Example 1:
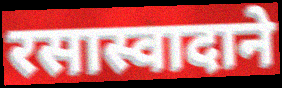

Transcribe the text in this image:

रसास्वादाने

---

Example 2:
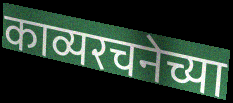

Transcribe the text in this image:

काव्यरचनेच्या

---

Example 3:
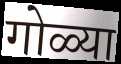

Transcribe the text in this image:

गोळ्या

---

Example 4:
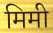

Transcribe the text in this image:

मिमी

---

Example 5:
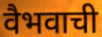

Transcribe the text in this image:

वैभवाची